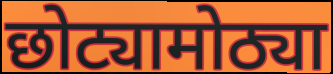
छोट्यामोठ्या